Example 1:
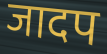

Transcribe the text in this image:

जादप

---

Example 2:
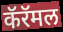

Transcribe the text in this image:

कॅरॅमल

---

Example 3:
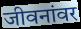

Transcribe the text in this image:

जीवनांवर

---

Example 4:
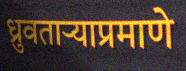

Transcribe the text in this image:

ध्रुवताऱ्याप्रमाणे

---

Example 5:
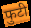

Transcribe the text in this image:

फुटी